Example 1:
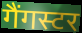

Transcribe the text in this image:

गैंगस्टर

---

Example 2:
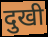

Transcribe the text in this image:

दुखी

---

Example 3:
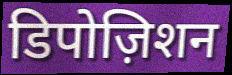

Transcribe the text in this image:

डिपोज़िशन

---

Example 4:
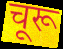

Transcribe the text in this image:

चूरू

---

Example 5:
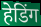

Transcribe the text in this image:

हेडिंग